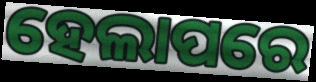
ହେଲାପରେ